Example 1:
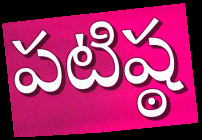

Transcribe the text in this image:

పటిష్ఠ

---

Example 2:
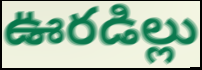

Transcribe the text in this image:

ఊరడిల్లు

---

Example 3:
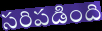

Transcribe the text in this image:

సరిపడింది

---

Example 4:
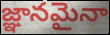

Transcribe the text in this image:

జ్ఞానమైనా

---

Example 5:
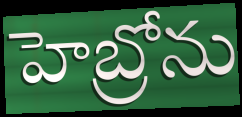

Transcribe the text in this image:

హెబ్రోను